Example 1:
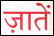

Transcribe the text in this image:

ज़ातें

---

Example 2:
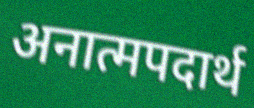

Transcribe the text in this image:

अनात्मपदार्थ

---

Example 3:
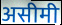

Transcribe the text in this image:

असीमी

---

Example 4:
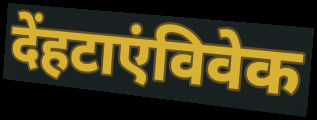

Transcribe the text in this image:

देंहटाएंविवेक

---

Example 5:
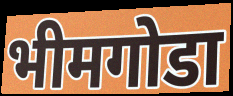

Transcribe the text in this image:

भीमगोडा